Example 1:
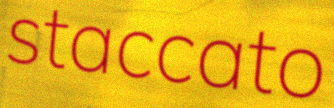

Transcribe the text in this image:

staccato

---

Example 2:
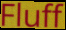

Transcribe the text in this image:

Fluff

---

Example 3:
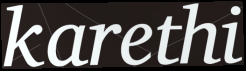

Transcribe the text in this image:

karethi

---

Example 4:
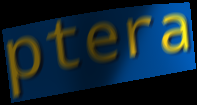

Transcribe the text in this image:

ptera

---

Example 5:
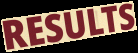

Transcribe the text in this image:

RESULTS